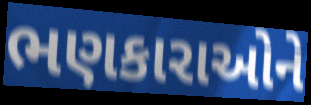
ભણકારાઓને